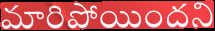
మారిపోయిందని